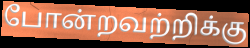
போன்றவற்றிக்கு